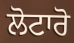
ਲੋਟਾਰੋ